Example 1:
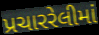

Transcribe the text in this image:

પ્રચારરેલીમાં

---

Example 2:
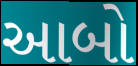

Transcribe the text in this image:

આબો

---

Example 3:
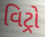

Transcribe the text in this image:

વિટ્રો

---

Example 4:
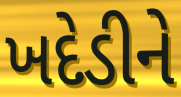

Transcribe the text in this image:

ખદેડીને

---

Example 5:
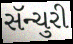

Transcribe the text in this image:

સૅન્ચુરી